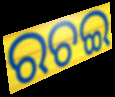
ରଚଇ